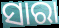
ସାରା